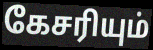
கேசரியும்